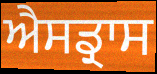
ਐਸਡ੍ਰਾਸ